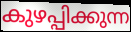
കുഴപ്പിക്കുന്ന